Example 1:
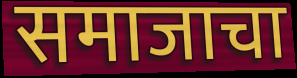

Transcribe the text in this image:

समाजाचा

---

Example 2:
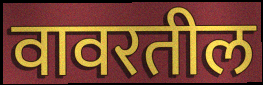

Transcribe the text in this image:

वावरतील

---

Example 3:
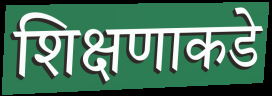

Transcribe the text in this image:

शिक्षणाकडे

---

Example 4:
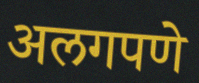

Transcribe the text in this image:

अलगपणे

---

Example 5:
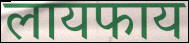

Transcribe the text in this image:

लायफाय